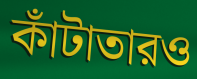
কাঁটাতারও